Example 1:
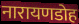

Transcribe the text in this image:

नारायणडोह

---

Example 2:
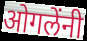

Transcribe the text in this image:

ओगलेंनी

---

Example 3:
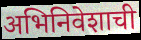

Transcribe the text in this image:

अभिनिवेशाची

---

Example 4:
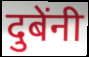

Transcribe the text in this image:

दुबेंनी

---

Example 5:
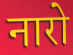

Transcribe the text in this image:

नारो